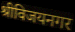
श्रीविजयनगर